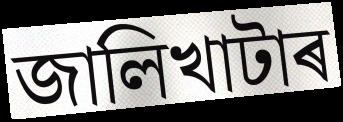
জালিখাটাৰ